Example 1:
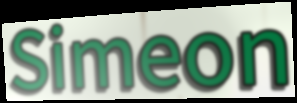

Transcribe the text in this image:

Simeon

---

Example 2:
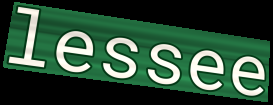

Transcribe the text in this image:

lessee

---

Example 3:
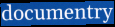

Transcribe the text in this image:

documentry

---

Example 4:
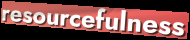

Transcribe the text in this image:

resourcefulness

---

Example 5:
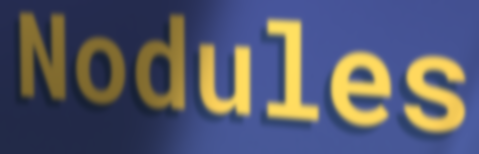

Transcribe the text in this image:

Nodules